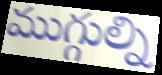
ముగ్గుల్ని